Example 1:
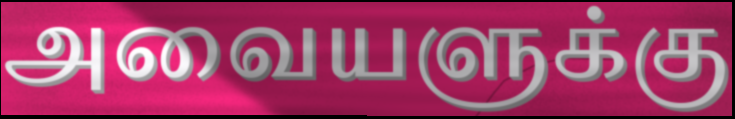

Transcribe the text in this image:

அவையளுக்கு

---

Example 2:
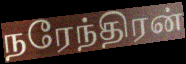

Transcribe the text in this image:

நரேந்திரன்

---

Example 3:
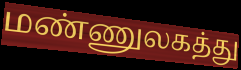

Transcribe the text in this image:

மண்ணுலகத்து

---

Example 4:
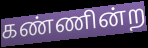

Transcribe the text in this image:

கண்ணின்ற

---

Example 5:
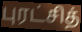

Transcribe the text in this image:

புரட்சித்